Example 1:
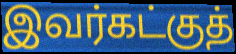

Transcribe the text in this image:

இவர்கட்குத்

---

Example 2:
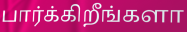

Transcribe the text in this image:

பார்க்கிறீங்களா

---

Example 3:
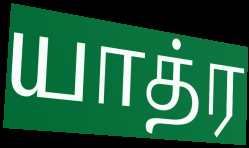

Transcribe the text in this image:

யாத்ர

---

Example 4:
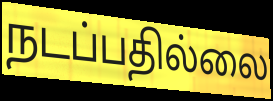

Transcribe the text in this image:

நடப்பதில்லை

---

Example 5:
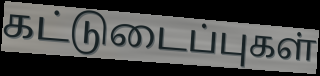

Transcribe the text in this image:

கட்டுடைப்புகள்